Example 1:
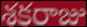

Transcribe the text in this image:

శకరాజు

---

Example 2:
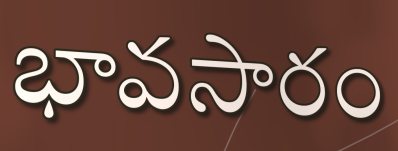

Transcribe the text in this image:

భావసారం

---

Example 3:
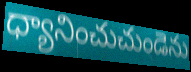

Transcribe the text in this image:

ధ్యానించుచుండెను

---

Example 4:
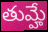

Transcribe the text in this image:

తుమ్హే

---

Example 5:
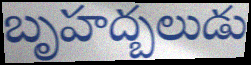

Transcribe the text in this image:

బృహద్బలుడు